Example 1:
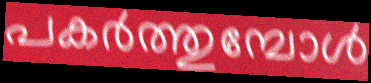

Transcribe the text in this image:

പകർത്തുമ്പോൾ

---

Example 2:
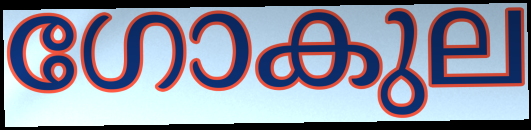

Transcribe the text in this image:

ഗോകുല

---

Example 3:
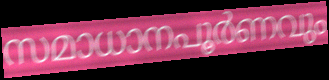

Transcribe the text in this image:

സമാധാനപൂർണവും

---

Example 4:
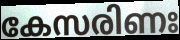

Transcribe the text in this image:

കേസരിണഃ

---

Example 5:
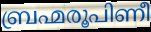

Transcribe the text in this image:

ബ്രഹ്മരൂപിണീ